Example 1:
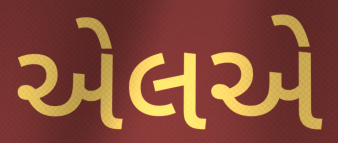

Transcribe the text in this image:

એલએ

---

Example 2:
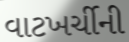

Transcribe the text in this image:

વાટખર્ચીની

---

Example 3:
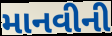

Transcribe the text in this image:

માનવીની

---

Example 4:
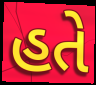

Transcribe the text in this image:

હતે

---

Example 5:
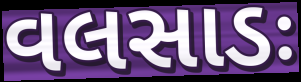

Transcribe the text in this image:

વલસાડઃ